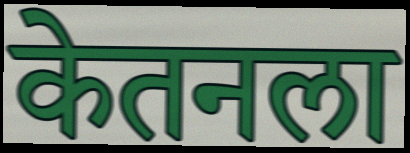
केतनला